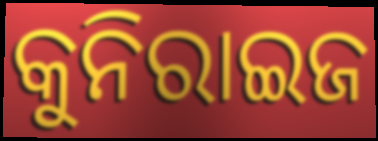
କୁନିରାଇଜ